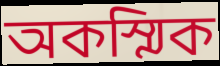
অকস্মিক